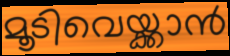
മൂടിവെയ്ക്കാൻ